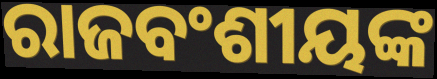
ରାଜବଂଶୀୟଙ୍କ